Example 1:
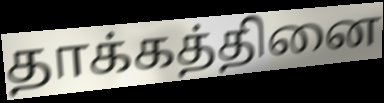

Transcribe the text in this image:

தாக்கத்தினை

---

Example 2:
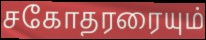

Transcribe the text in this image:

சகோதரரையும்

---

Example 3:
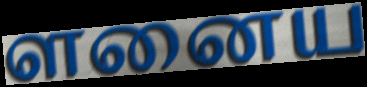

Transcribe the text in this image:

ளனைய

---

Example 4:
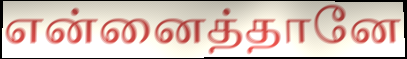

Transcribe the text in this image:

என்னைத்தானே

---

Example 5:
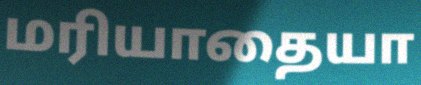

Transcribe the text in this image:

மரியாதையா